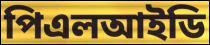
পিএলআইডি